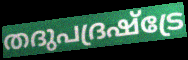
തദുപദ്രഷ്ട്രേ